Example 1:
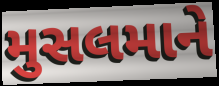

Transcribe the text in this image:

મુસલમાને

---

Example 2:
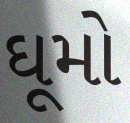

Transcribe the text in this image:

ઘૂમો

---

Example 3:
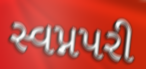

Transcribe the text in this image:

સ્વપ્નપરી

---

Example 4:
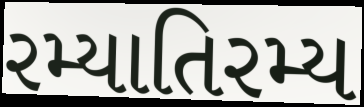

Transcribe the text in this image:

રમ્યાતિરમ્ય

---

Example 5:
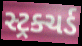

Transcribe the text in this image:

સ્ટ્રક્ચર્ડ